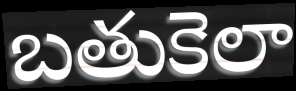
బతుకెలా